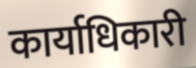
कार्याधिकारी